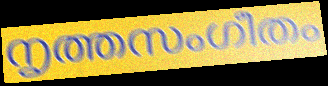
നൃത്തസംഗീതം